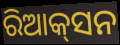
ରିଆକ୍‌ସନ